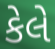
કેલે